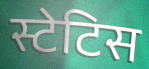
स्टेटिस